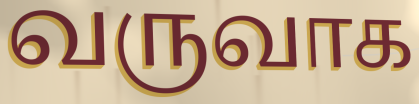
வருவாக